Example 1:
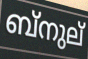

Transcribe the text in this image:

ബ്നുല്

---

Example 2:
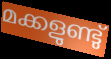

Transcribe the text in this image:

മക്കളുണ്ടു്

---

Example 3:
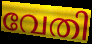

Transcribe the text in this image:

വേതി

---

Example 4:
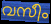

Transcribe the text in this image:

വസീം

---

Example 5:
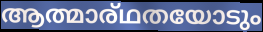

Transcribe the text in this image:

ആത്മാര്ഥതയോടും